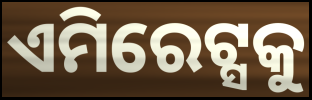
ଏମିରେଟ୍ସକୁ